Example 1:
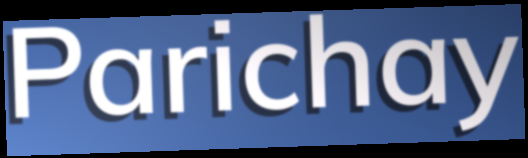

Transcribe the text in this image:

Parichay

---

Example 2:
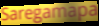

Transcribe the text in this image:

Saregamapa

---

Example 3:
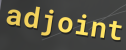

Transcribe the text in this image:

adjoint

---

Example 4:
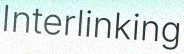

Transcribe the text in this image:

Interlinking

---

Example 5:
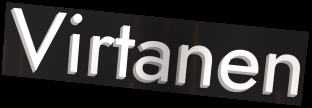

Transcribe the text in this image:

Virtanen